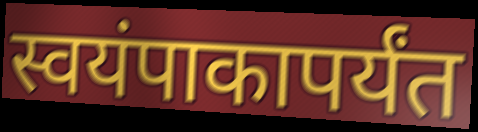
स्वयंपाकापर्यंत